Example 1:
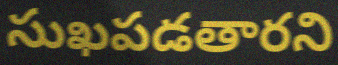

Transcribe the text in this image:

సుఖపడతారని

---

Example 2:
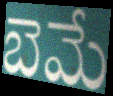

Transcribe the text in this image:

బెమే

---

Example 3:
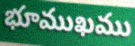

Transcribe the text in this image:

భూముఖము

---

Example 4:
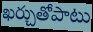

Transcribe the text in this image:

ఖర్చుతోపాటు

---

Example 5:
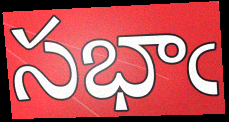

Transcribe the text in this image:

సభాఁ